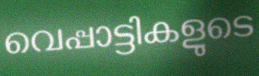
വെപ്പാട്ടികളുടെ